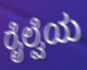
ರೈಲ್ವೆಯ